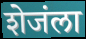
शेजंला